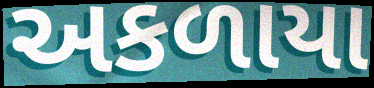
અકળાયા